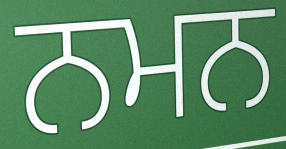
ਨਮਨ